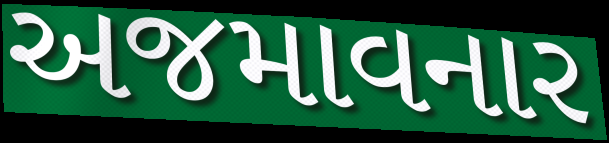
અજમાવનાર